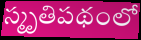
స్మృతిపథంలో